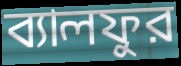
ব্যালফুর